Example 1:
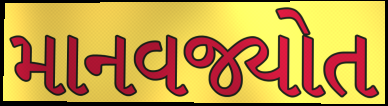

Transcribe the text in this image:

માનવજ્યોત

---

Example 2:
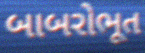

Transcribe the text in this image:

બાબરોભૂત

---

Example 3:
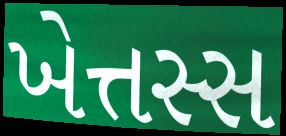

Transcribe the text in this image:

ખેત્તસ્સ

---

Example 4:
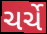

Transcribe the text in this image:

ચર્ચે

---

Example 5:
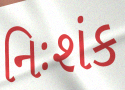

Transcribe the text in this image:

નિઃશંક